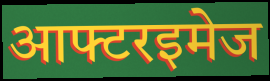
आफ्टरइमेज